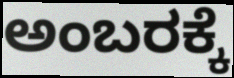
ಅಂಬರಕ್ಕೆ